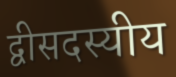
द्वीसदस्यीय